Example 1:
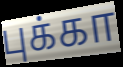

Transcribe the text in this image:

புக்கா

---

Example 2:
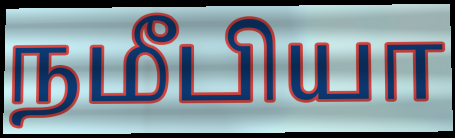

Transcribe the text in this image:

நமீபியா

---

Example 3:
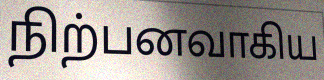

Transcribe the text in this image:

நிற்பனவாகிய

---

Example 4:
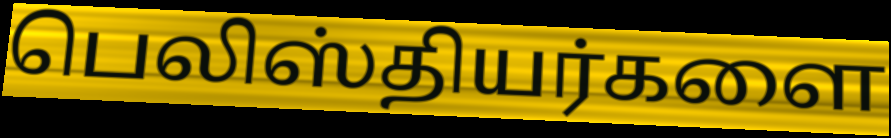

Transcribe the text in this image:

பெலிஸ்தியர்களை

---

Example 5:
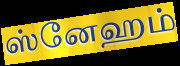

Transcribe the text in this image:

ஸ்னேஹம்